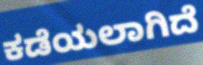
ಕಡೆಯಲಾಗಿದೆ